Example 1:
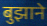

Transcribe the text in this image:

बुझाने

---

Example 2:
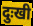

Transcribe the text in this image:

दुःखी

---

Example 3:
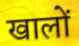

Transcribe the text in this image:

खालों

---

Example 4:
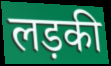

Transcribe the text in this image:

लड़की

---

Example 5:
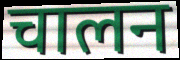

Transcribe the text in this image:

चालन